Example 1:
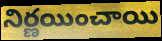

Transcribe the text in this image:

నిర్ణయించాయి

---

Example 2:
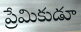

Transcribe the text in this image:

ప్రేమికుడూ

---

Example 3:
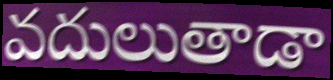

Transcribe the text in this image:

వదులుతాడా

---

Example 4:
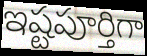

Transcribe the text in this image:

ఇష్టపూర్తిగా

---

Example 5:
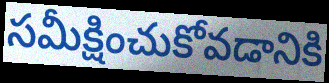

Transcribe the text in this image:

సమీక్షించుకోవడానికి